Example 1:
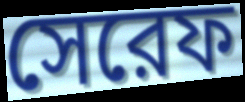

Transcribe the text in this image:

সেরেফ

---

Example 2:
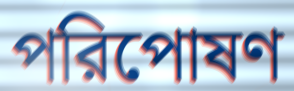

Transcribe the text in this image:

পরিপোষণ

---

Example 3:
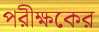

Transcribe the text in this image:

পরীক্ষকের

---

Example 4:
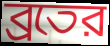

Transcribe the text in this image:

ব্রতের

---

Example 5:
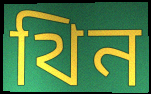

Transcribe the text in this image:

থিন